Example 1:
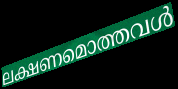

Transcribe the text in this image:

ലക്ഷണമൊത്തവൾ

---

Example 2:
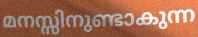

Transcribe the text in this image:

മനസ്സിനുണ്ടാകുന്ന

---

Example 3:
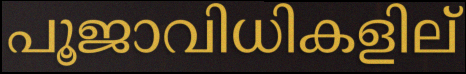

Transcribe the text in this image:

പൂജാവിധികളില്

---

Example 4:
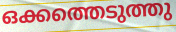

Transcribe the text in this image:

ഒക്കത്തെടുത്തു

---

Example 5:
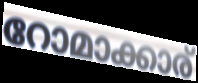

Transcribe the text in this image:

റോമാക്കാര്